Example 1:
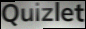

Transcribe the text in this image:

Quizlet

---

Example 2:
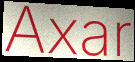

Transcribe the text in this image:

Axar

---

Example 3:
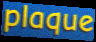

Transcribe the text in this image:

plaque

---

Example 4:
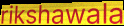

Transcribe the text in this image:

rikshawala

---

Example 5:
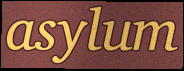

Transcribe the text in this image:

asylum